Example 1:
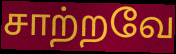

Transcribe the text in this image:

சாற்றவே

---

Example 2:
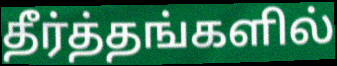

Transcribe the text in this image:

தீர்த்தங்களில்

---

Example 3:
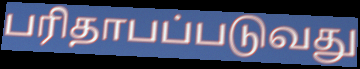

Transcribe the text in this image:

பரிதாபப்படுவது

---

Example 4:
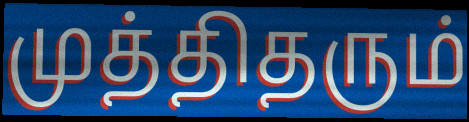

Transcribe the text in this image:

முத்திதரும்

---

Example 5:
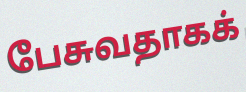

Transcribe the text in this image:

பேசுவதாகக்